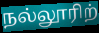
நல்லூரிற்